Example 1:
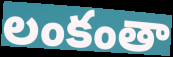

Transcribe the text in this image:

లంకంతా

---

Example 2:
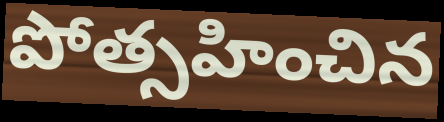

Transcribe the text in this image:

పోత్సహించిన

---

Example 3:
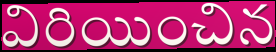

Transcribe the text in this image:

విరియించిన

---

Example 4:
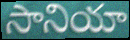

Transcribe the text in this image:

సానియా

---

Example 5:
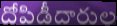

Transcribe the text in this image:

దోపిడీదారుల